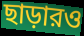
ছাড়ারও